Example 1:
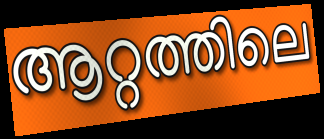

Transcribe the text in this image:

ആറ്റത്തിലെ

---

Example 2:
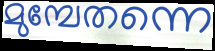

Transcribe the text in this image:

മുമ്പേതന്നെ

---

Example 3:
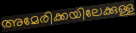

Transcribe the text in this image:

അമേരിക്കയിലേക്കുള്ള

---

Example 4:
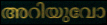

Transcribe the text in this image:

അറിയുവോ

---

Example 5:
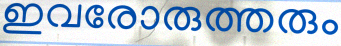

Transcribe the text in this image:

ഇവരോരുത്തരും